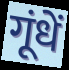
गूंधें